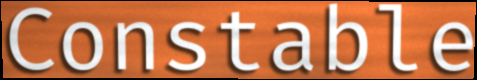
Constable